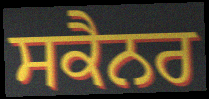
ਸਕੈਨਰ